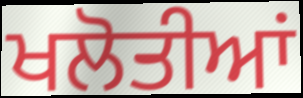
ਖਲੋਤੀਆਂ